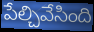
పేల్చివేసింది